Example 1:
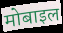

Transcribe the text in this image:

मोबाइल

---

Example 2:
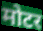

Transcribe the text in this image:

मोटर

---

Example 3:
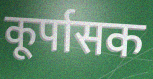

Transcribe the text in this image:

कूर्पासक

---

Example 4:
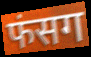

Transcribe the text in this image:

फंसग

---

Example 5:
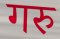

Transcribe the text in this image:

गरु